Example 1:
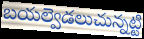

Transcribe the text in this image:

బయల్వెడలుచున్నట్టి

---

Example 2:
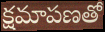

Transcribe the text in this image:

క్షమాపణతో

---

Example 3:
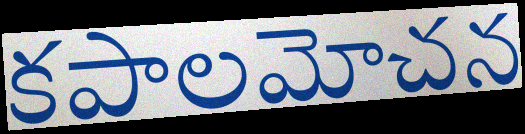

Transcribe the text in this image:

కపాలమోచన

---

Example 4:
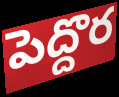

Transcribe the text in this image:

పెద్దొర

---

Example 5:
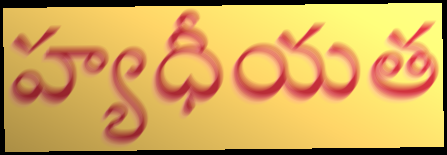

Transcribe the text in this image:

హ్యధీయత